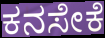
ಕನಸೇಕೆ